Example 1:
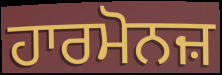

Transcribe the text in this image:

ਹਾਰਮੋਨਜ਼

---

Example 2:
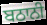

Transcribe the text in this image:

ਬਠਾਨੀ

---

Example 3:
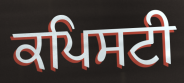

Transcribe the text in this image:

ਕਪਿਸਟੀ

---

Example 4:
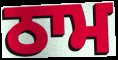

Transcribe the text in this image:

ਠਾਮ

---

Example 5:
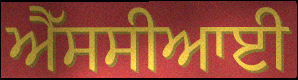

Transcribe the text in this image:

ਐੱਸਸੀਆਈ